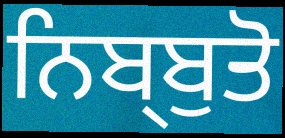
ਨਿਬ੍ਬੁਤੋ